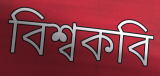
বিশ্বকবি